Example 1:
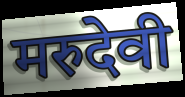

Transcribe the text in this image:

मरुदेवी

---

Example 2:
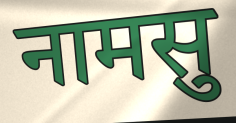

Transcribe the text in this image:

नामसु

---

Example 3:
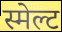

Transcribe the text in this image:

स्मेल्ट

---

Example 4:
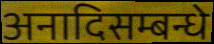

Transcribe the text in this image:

अनादिसम्बन्धे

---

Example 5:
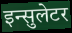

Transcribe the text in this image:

इन्सुलेटर